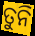
ତୁନି